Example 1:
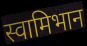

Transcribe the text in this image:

स्वामिभान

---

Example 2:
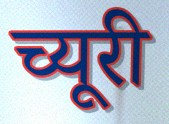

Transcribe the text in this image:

च्यूरी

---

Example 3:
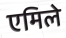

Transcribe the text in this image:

एमिले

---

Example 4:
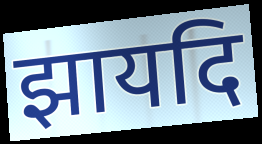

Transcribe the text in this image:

झायदि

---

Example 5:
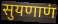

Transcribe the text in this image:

सुयणाणं